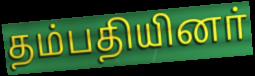
தம்பதியினர்